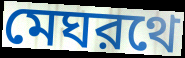
মেঘরথে